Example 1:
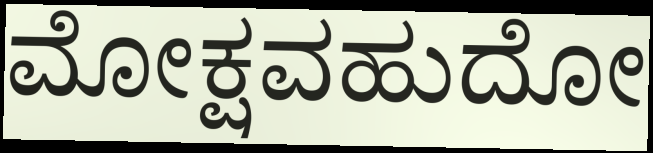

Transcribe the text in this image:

ಮೋಕ್ಷವಹುದೋ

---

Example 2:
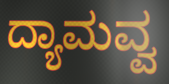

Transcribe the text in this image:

ದ್ಯಾಮವ್ವ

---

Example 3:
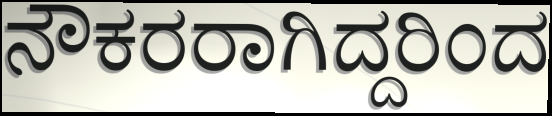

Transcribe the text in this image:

ನೌಕರರಾಗಿದ್ದರಿಂದ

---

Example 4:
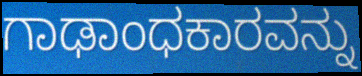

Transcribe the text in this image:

ಗಾಢಾಂಧಕಾರವನ್ನು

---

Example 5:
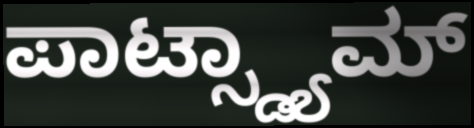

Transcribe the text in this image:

ಪಾಟ್ಸ್ಡ್ಯಾಮ್